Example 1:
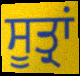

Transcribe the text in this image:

ਸੂਤ੍ਰਾਂ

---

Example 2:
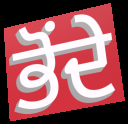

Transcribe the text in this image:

ਭੋਂਦੇ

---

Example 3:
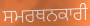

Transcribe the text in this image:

ਸਮਰਥਨਕਾਰੀ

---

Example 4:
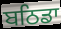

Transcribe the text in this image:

ਬਠਿਡਾ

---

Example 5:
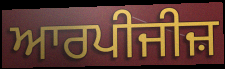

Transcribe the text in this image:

ਆਰਪੀਜੀਜ਼